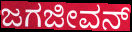
ಜಗಜೀವನ್